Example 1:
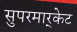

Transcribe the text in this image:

सुपरमार्केट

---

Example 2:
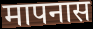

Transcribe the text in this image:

मापनास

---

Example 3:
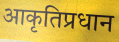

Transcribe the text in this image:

आकृतिप्रधान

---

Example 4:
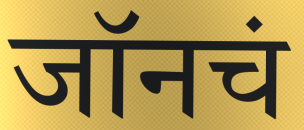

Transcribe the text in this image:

जॉनचं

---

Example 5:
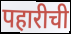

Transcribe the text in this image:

पहारीची